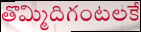
తొమ్మిదిగంటలకే